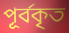
পূর্বকৃত